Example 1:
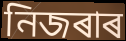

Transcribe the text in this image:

নিজৰাৰ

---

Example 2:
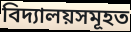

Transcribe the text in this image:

বিদ্যালয়সমূহত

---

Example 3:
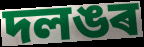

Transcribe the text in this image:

দলঙৰ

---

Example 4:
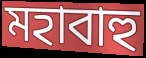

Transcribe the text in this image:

মহাবাহু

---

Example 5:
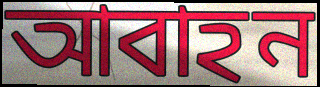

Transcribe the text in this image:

আবাহন